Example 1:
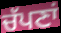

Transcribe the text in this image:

ਚੱਪਣਾਂ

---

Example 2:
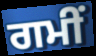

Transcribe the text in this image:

ਗਮੀਂ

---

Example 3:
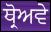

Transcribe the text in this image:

ਥ੍ਰੋਅਵੇ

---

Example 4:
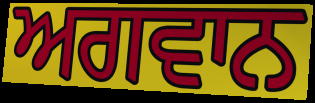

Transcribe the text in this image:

ਅਗਵਾਨ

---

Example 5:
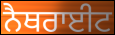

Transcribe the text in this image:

ਨੈਥਰਾਈਟ